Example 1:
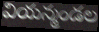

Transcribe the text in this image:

వియన్మండల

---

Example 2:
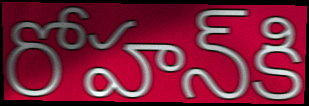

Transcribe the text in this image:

రోహన్‌కి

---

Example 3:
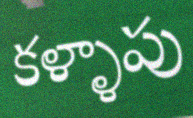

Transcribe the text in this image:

కళ్ళాపు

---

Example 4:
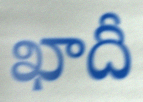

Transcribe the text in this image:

ఖాదీ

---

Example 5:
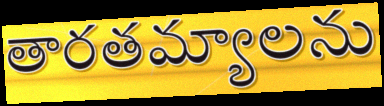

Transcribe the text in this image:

తారతమ్యాలను